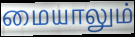
மையாலும்